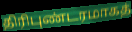
திரிபுண்டரமாகத்